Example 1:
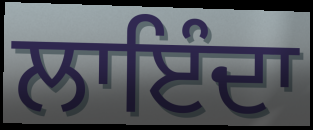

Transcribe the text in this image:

ਲਾਇੰਦਾ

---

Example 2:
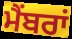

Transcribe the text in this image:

ਮੈਂਬਰਾਂ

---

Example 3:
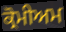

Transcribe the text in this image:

ਕ੍ਰੋਮੀਅਮ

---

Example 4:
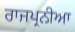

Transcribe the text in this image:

ਰਾਜਪ੍ਰਨੀਆ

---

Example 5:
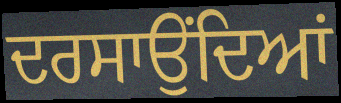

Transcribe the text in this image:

ਦਰਸਾਉਂਦਿਆਂ